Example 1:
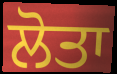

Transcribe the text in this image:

ਲੋਤਾ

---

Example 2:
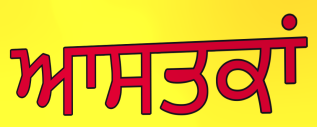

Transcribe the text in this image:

ਆਸਤਕਾਂ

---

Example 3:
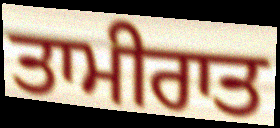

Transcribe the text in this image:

ਤਾਮੀਰਾਤ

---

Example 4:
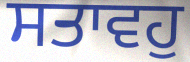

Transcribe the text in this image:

ਸਤਾਵਹੁ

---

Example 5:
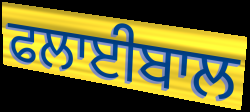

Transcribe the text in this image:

ਫਲਾਈਬਾਲ